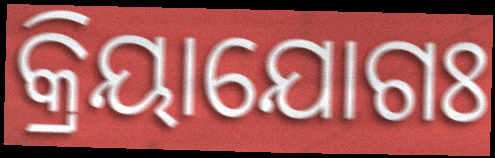
କ୍ରିୟାଯୋଗଃ